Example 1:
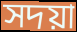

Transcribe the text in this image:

সদয়া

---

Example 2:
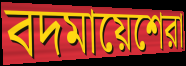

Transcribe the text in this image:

বদমায়েশেরা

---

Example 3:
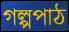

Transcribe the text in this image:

গল্পপাঠ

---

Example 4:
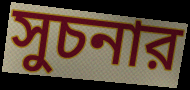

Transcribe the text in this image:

সুচনার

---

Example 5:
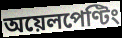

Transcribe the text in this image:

অয়েলপেণ্টিং